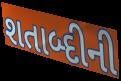
શતાબ્દીની